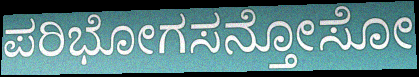
ಪರಿಭೋಗಸನ್ತೋಸೋ